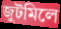
জুটমিলে